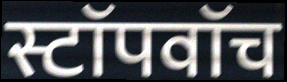
स्टॉपवॉच